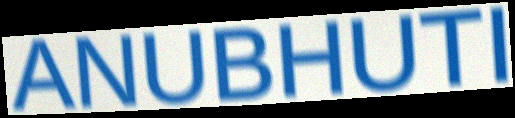
ANUBHUTI